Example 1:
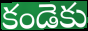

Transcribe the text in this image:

కండెకు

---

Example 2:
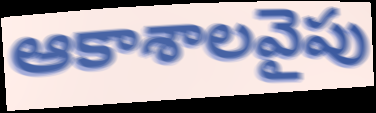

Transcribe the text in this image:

ఆకాశాలవైపు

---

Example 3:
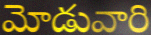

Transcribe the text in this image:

మోడువారి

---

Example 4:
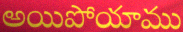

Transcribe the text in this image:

అయిపోయాము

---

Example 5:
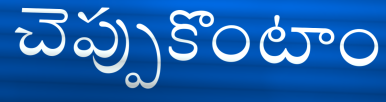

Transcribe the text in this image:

చెప్పుకొంటాం